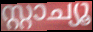
സ്റ്റാച്യൂ